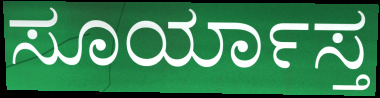
ಸೂರ್ಯಾಸ್ತ